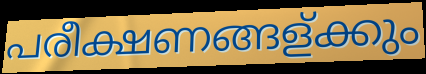
പരീക്ഷണങ്ങള്ക്കും